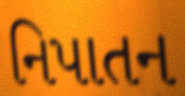
નિપાતન